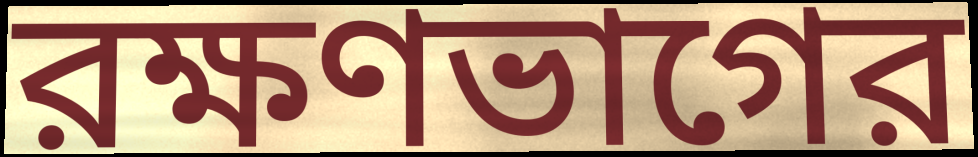
রক্ষণভাগের